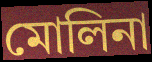
মোলিনা